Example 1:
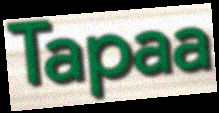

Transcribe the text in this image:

Tapaa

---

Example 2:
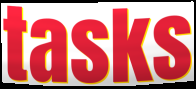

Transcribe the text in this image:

tasks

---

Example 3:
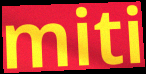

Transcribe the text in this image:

miti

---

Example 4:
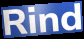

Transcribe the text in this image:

Rind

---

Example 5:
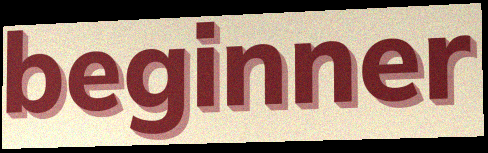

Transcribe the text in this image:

beginner